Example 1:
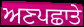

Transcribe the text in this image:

ਅਣਪਛਾਤੇ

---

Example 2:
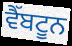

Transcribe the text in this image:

ਵੈੱਬਟੂਨ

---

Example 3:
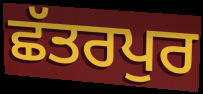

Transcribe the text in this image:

ਛੱਤਰਪੁਰ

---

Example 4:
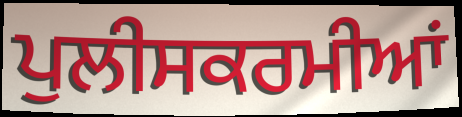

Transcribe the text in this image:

ਪੁਲੀਸਕਰਮੀਆਂ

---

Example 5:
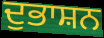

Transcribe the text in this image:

ਦੁਭਾਸ਼ਨ